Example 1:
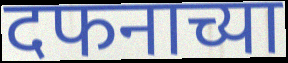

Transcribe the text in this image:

दफनाच्या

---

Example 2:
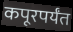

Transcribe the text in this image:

कपूरपर्यंत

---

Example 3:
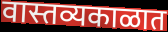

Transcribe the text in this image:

वास्तव्यकाळात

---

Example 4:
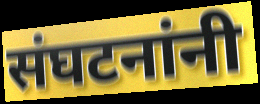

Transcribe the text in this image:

संघटनांनी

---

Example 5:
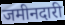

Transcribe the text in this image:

जमीनदारी